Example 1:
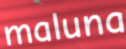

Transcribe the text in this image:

maluna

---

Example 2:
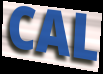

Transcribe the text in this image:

CAL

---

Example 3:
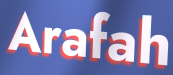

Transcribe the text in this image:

Arafah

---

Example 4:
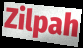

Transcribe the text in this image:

Zilpah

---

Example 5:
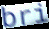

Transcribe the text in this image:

bri